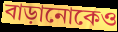
বাড়ানোকেও